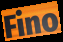
Fino